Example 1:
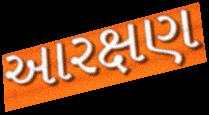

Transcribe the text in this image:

આરક્ષણ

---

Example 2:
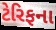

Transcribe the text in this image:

ટેરિફના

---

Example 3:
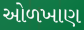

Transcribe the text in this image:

ઓળખાણ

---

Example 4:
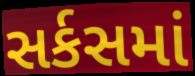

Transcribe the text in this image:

સર્કસમાં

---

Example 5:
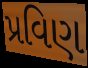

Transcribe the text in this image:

પ્રવિણ